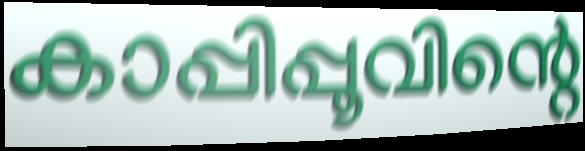
കാപ്പിപ്പൂവിന്റെ